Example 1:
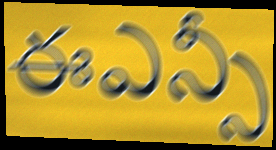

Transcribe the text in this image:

ఈఎన్సీ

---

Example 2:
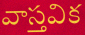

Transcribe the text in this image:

వాస్తవిక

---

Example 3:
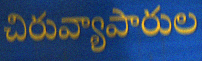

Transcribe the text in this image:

చిరువ్యాపారుల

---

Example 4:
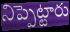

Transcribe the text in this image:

నిప్పెట్టారు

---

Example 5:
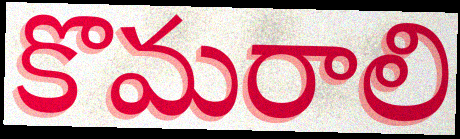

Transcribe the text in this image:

కొమరాలి